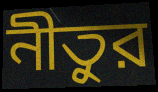
নীতুর